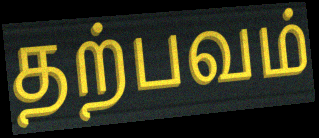
தற்பவம்